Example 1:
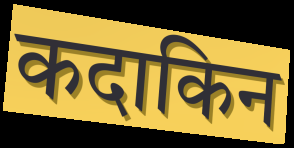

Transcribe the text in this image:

कदाकिन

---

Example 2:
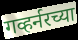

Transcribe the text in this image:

गव्हर्नरच्या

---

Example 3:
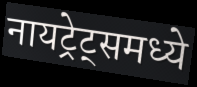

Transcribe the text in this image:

नायट्रेट्समध्ये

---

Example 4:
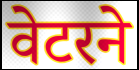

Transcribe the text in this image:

वेटरने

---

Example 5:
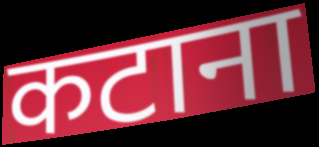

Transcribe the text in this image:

कटाना